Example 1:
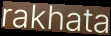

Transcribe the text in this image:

rakhata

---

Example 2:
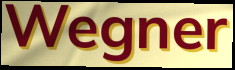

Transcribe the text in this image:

Wegner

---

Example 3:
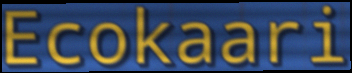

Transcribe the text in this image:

Ecokaari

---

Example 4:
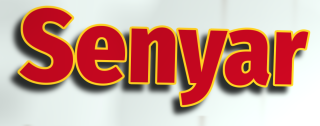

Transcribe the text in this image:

Senyar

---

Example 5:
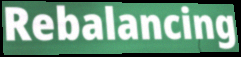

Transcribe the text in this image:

Rebalancing